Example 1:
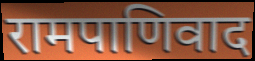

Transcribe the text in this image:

रामपाणिवाद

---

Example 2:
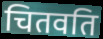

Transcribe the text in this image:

चितवति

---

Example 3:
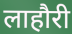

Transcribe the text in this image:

लाहौरी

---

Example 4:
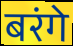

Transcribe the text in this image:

बरंगे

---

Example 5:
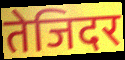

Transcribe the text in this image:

तेजिदर